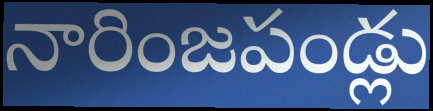
నారింజపండ్లు